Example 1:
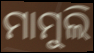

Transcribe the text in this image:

ମାମୁଲି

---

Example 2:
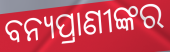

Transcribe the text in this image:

ବନ୍ୟପ୍ରାଣୀଙ୍କର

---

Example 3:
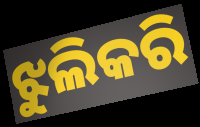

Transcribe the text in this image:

ଝୁଲିକରି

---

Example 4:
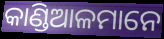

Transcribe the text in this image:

କାଣ୍ଡିଆଳମାନେ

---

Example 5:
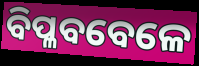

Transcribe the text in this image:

ବିପ୍ଳବବେଳେ